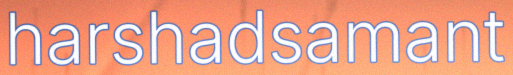
harshadsamant